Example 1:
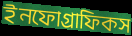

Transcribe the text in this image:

ইনফোগ্রাফিকস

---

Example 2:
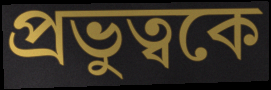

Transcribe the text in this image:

প্রভুত্বকে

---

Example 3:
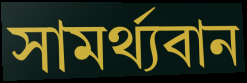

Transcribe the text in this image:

সামর্থ্যবান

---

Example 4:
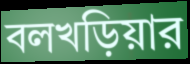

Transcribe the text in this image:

বলখড়িয়ার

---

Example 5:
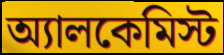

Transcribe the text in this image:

অ্যালকেমিস্ট